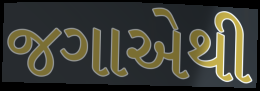
જગાએથી